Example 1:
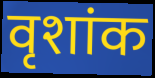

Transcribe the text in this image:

वृशांक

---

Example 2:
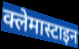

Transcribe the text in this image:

क्लेमास्टाइन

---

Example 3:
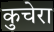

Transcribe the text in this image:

कुचेरा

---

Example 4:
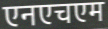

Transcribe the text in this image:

एनएचएम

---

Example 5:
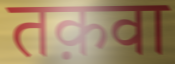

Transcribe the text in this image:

तक़वा